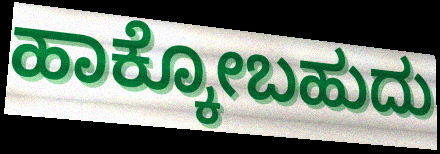
ಹಾಕ್ಕೋಬಹುದು